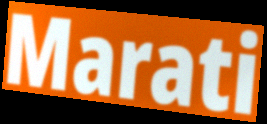
Marati